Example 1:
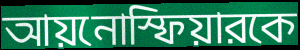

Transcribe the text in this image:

আয়নোস্ফিয়ারকে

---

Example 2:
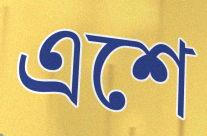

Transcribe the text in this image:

এশে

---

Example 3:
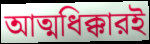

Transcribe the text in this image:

আত্মধিক্কারই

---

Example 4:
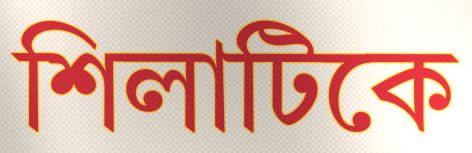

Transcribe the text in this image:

শিলাটিকে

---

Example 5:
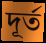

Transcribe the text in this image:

দূর্ত